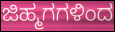
ಜಿಹ್ಮಗಗಳಿಂದ